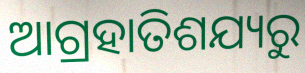
ଆଗ୍ରହାତିଶଯ୍ୟରୁ